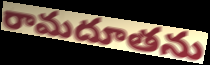
రామదూతను